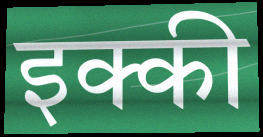
इक्की